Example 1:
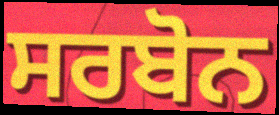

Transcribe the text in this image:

ਸਰਬੋਨ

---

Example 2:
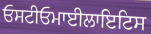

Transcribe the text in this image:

ਓਸਟੀਓਮਾਈਲਾਇਟਿਸ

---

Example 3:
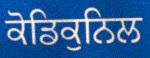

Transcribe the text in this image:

ਕੋਡਿਕੁਨਿਲ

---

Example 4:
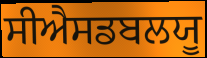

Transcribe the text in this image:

ਸੀਐਸਡਬਲਯੂ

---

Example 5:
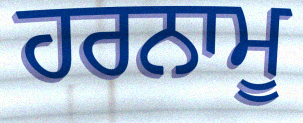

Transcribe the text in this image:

ਹਰਨਾਮੂ